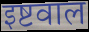
इष्टवाल